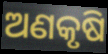
ଅଣକୃଷି